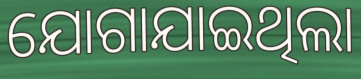
ଯୋଗାଯାଇଥିଲା